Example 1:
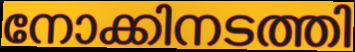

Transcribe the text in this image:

നോക്കിനടത്തി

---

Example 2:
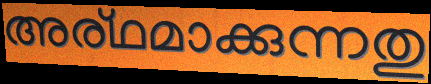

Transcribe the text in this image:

അര്ഥമാക്കുന്നതു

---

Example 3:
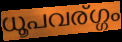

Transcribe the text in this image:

ധൂപവര്ഗ്ഗം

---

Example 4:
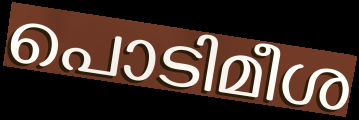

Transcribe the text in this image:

പൊടിമീശ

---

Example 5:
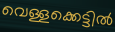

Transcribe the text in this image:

വെള്ളക്കെട്ടിൽ